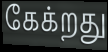
கேக்றது